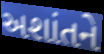
અશાંતને